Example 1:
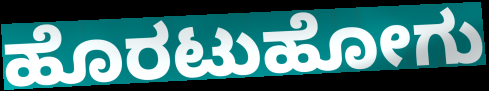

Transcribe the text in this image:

ಹೊರಟುಹೋಗು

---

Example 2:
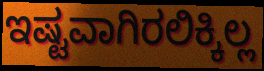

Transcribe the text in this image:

ಇಷ್ಟವಾಗಿರಲಿಕ್ಕಿಲ್ಲ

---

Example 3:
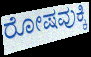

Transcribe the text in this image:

ರೋಷವುಕ್ಕಿ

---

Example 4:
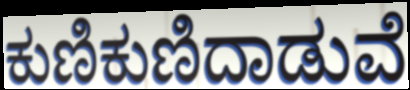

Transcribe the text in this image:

ಕುಣಿಕುಣಿದಾಡುವೆ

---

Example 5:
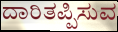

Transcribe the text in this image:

ದಾರಿತಪ್ಪಿಸುವ